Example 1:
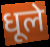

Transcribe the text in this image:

धूले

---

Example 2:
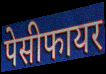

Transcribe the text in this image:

पेसीफायर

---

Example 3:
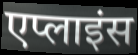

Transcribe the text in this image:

एप्लाइंस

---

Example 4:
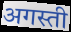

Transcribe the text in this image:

अगस्ती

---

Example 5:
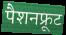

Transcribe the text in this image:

पैशनफ्रूट